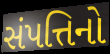
સંપત્તિનો